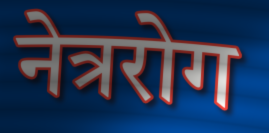
नेत्ररोग